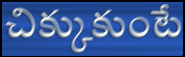
చిక్కుకుంటే